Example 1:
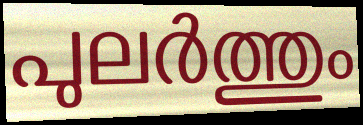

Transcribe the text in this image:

പുലർത്തും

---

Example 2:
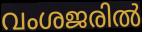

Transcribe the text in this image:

വംശജരിൽ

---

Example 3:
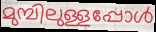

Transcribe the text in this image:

മുമ്പിലുള്ളപ്പോൾ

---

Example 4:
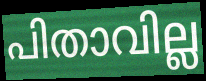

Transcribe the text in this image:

പിതാവില്ല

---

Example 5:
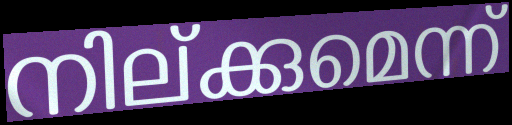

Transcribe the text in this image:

നില്ക്കുമെന്ന്